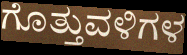
ಗೊತ್ತುವಳಿಗಳ